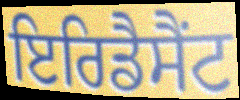
ਇਰਿਡੈਸੈਂਟ